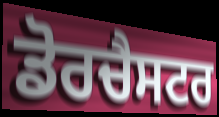
ਡੋਰਚੈਸਟਰ